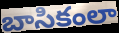
బాసికంలా